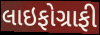
લાઇફોગ્રાફી